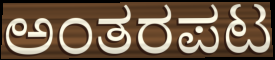
ಅಂತರಪಟ